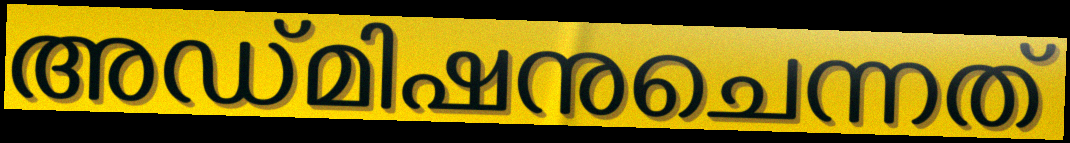
അഡ്മിഷനുചെന്നത്